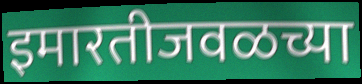
इमारतीजवळच्या